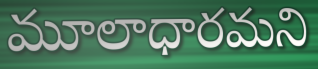
మూలాధారమని